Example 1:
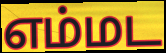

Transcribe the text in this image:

எம்மட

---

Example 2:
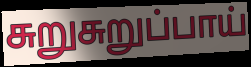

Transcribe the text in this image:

சுறுசுறுப்பாய்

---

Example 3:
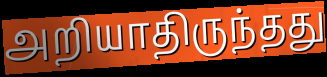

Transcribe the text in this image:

அறியாதிருந்தது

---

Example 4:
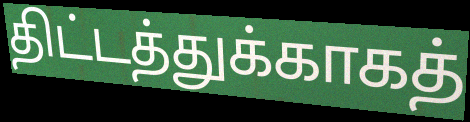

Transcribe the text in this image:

திட்டத்துக்காகத்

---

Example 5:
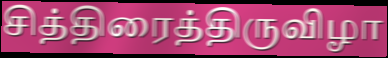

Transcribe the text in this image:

சித்திரைத்திருவிழா